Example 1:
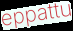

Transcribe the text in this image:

eppattu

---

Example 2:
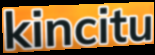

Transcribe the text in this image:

kincitu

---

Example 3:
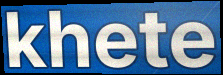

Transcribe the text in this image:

khete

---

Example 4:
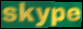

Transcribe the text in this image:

skype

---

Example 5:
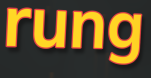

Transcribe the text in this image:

rung